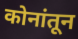
कोनांतून